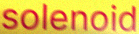
solenoid